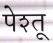
पेश्तू